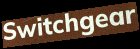
Switchgear